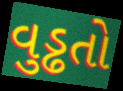
વુડ્ઢતો